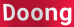
Doong